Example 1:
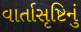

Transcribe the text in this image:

વાર્તાસૃષ્ટિનું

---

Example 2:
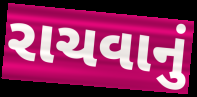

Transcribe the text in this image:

રાચવાનું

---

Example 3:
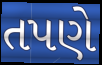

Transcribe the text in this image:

તપણે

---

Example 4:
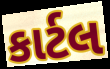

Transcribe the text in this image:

કાર્ટલ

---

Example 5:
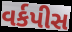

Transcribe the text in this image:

વર્કપીસ